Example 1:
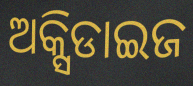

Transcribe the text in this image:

ଅକ୍ସିଡାଇଜ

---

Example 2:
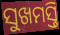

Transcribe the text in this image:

ସୁଖମସ୍ତି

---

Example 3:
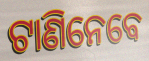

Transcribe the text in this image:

ଟାଣିନେବେ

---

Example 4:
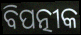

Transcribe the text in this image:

ବିପତ୍ନୀକ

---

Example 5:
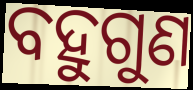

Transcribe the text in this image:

ବହୁଗୁଣ